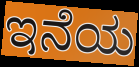
ಇನೆಯ